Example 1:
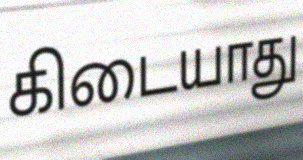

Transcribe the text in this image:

கிடையாது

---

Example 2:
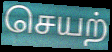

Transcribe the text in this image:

செயற்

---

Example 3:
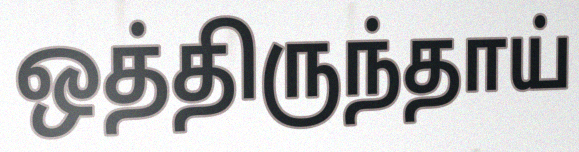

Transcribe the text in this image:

ஒத்திருந்தாய்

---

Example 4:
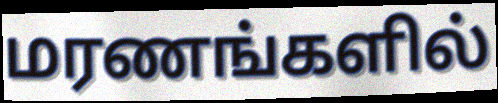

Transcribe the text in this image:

மரணங்களில்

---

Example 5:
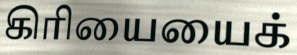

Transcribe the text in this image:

கிரியையைக்